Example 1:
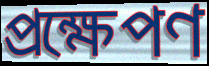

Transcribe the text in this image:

প্ৰক্ষেপণ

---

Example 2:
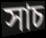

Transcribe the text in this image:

সাচ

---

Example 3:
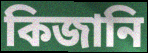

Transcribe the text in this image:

কিজানি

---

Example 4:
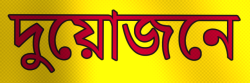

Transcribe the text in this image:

দুয়োজনে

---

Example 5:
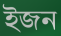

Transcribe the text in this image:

ইজন